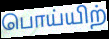
பொய்யிற்